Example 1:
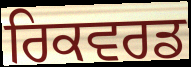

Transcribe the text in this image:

ਰਿਕਵਰਡ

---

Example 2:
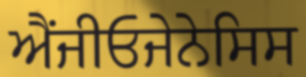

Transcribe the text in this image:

ਐਂਜੀਓਜੇਨੇਸਿਸ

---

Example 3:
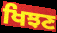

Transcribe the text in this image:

ਖਿਝਣ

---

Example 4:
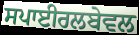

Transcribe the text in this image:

ਸਪਾਈਰਲਬੇਵਲ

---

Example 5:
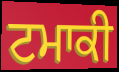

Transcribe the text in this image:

ਟਮਾਕੀ